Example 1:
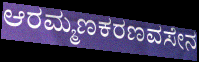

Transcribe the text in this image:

ಆರಮ್ಮಣಕರಣವಸೇನ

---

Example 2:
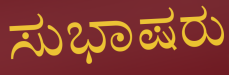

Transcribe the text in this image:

ಸುಭಾಷರು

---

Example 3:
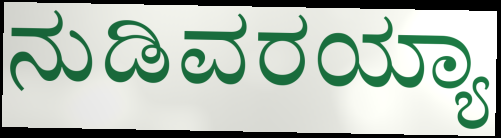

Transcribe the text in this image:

ನುಡಿವರಯ್ಯಾ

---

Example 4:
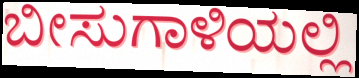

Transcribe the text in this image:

ಬೀಸುಗಾಳಿಯಲ್ಲಿ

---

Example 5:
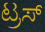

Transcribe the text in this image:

ಟ್ರಸ್